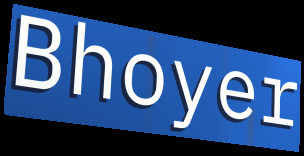
Bhoyer